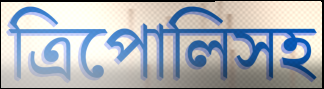
ত্রিপোলিসহ